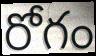
రోగం